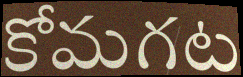
కోమగట